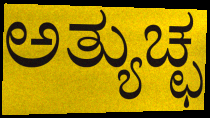
ಅತ್ಯುಚ್ಛ